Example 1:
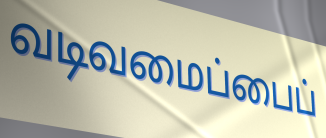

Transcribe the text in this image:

வடிவமைப்பைப்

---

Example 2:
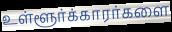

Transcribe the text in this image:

உள்ளூர்க்காரர்களை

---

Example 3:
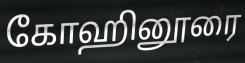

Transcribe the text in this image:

கோஹினூரை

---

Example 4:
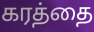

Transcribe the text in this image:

கரத்தை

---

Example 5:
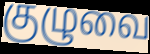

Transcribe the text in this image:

குழுவை